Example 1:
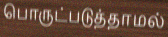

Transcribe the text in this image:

பொருட்படுத்தாமல்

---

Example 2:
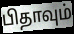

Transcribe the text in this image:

பிதாவும்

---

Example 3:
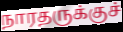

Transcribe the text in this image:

நாரதருக்குச்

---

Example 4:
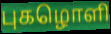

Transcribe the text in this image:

புகழொளி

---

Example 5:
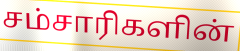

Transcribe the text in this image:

சம்சாரிகளின்